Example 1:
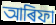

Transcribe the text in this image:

আৰিফা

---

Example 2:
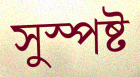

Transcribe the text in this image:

সুস্পষ্ট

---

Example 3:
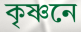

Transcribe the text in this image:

কৃষ্ণনে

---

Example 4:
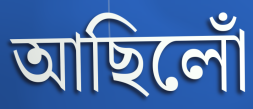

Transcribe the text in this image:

আছিলোঁ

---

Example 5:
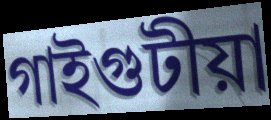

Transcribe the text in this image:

গাইগুটীয়া